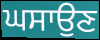
ਘਸਾਉਣ